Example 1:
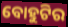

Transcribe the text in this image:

ବୋହୁଟିର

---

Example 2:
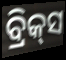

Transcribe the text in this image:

ବ୍ରିକ୍‌ସ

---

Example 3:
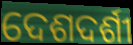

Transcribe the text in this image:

ଦେଶଦର୍ଶୀ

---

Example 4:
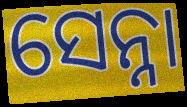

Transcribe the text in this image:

ସେନ୍ନା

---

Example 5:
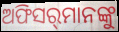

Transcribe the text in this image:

ଅଫିସର୍‌ମାନଙ୍କୁ